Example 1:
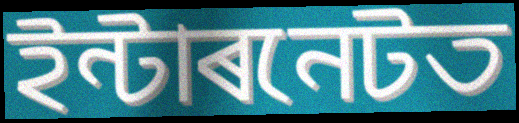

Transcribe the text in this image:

ইন্টাৰনেটত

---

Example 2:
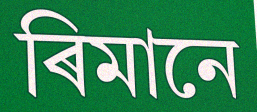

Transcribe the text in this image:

ৰিমানে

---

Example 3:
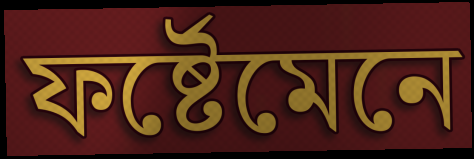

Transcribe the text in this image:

ফৰ্ষ্টেমেনে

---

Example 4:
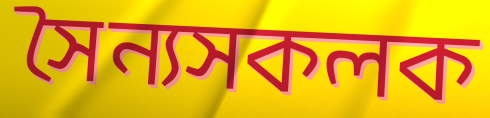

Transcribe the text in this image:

সৈন্যসকলক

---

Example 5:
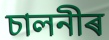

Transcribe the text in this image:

চালনীৰ